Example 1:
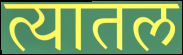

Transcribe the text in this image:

त्यातल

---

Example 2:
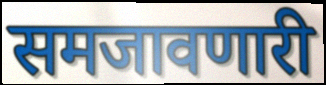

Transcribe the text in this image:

समजावणारी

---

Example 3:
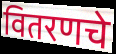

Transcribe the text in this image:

वितरणचे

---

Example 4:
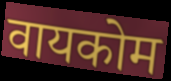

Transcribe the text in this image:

वायकोम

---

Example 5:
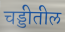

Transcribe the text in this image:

चड्डीतील